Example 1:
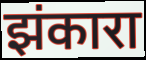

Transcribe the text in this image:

झंकारा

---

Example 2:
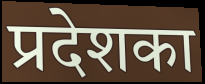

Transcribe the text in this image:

प्रदेशका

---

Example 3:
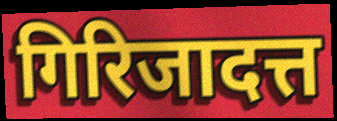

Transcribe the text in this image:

गिरिजादत्त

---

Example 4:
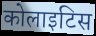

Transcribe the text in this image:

कोलाइटिस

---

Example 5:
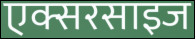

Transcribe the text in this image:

एक्सरसाइज